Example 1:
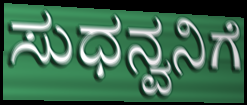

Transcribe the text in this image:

ಸುಧನ್ವನಿಗೆ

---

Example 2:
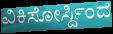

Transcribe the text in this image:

ವಿಕಿಸೋರ್ಸ್ದಿಂದ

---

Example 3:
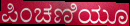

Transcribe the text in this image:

ಪಿಂಚಣಿಯೂ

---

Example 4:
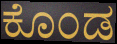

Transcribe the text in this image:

ಕೊಂಡ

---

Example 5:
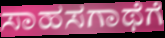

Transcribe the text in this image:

ಸಾಹಸಗಾಥೆಗೆ